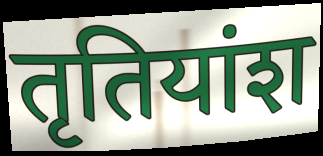
तृतियांश